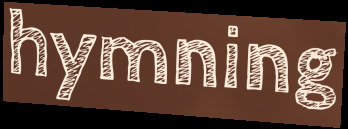
hymning